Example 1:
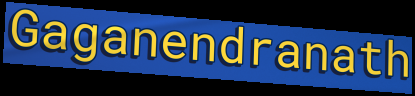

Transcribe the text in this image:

Gaganendranath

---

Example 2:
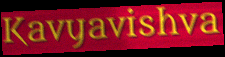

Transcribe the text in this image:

Kavyavishva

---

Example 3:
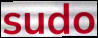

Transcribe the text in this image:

sudo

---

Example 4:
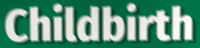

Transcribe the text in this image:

Childbirth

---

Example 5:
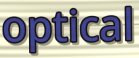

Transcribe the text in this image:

optical